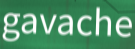
gavache